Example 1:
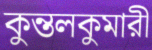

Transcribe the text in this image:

কুন্তলকুমারী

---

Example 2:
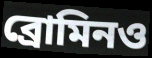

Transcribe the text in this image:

ব্রোমিনও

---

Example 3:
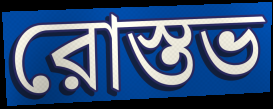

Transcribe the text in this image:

রোস্তভ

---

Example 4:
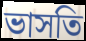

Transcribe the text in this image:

ভাসতি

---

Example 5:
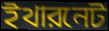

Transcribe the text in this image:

ইথারনেট